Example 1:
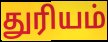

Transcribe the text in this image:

துரியம்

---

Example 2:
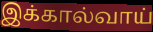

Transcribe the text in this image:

இக்கால்வாய்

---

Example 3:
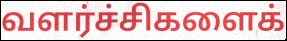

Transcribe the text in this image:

வளர்ச்சிகளைக்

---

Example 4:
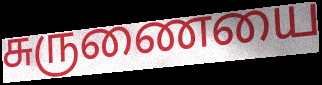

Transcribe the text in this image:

சுருணையை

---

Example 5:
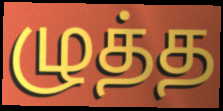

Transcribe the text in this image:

ழுத்த